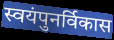
स्वयंपुनर्विकास